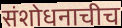
संशोधनाचीच